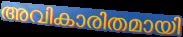
അവികാരിതമായി